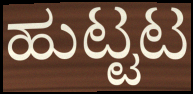
ಹುಟ್ಟಟ